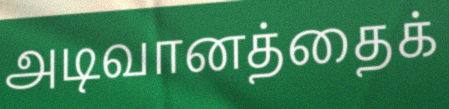
அடிவானத்தைக்